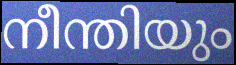
നീന്തിയും